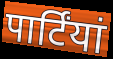
पार्टिंयां